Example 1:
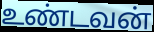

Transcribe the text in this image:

உண்டவன்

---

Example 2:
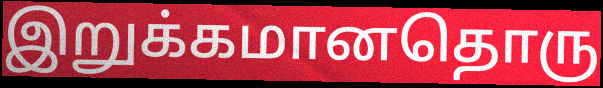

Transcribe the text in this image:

இறுக்கமானதொரு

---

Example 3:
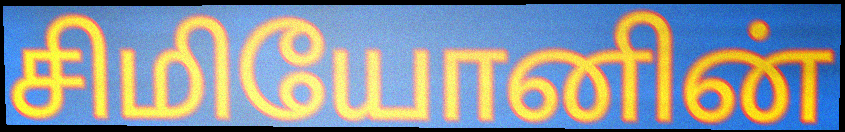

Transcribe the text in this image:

சிமியோனின்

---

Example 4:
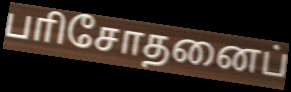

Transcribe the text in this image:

பரிசோதனைப்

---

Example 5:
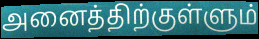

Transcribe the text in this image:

அனைத்திற்குள்ளும்